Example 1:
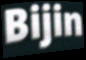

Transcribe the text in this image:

Bijin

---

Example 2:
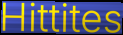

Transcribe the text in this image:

Hittites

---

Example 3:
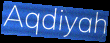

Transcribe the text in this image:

Aqdiyah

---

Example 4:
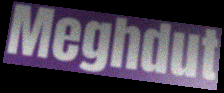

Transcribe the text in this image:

Meghdut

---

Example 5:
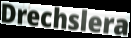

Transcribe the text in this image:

Drechslera